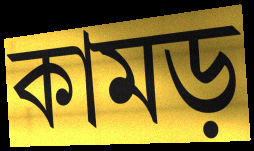
কামড়